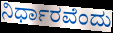
ನಿರ್ಧಾರವೆಂದು